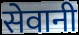
सेवानी